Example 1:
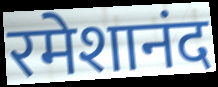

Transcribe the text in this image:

रमेशानंद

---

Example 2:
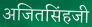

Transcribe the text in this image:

अजितसिंहजी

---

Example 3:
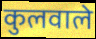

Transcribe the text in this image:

कुलवाले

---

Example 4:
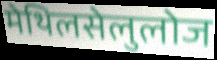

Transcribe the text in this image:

मेथिलसेलुलोज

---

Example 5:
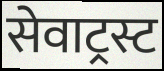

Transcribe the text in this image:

सेवाट्रस्ट